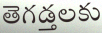
తెగడ్తలకు